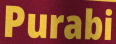
Purabi